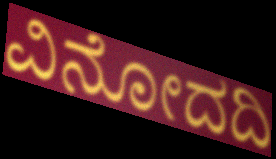
ವಿನೋದದಿ